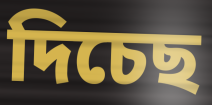
দিচেছ